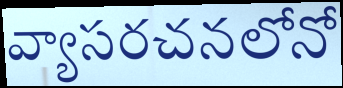
వ్యాసరచనలోనో